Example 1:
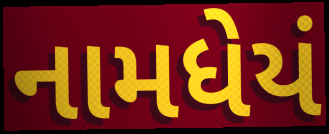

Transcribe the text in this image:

નામધેયં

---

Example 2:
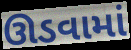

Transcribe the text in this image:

ઊડવામાં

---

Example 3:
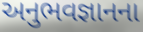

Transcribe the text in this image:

અનુભવજ્ઞાનના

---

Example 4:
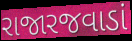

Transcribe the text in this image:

રાજારજવાડાં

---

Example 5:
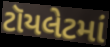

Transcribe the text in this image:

ટૉયલેટમાં